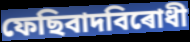
ফেছিবাদবিৰোধী